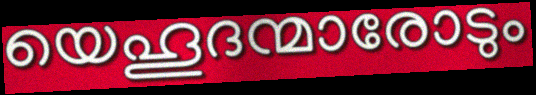
യെഹൂദന്മാരോടും